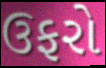
ઉફરો